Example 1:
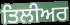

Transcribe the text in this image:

ਤਿਲੀਅਰ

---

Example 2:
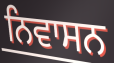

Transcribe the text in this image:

ਨਿਵਾਸਨ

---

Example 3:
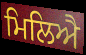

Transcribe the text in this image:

ਮਿਲਿਐ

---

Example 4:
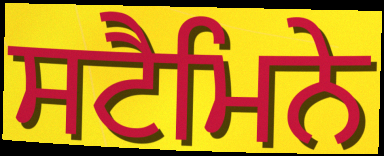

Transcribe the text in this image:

ਸਟੈਮਿਨੇ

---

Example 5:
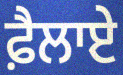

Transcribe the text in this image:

ਫ਼ੈਲਾਏ